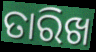
ତାରିଖ